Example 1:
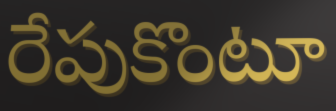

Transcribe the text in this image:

రేపుకొంటూ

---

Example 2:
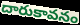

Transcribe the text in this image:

దారుకావనం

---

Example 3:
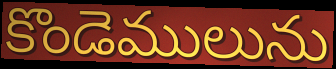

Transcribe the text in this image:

కొండెములును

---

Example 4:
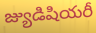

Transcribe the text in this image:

జ్యుడిషియరీ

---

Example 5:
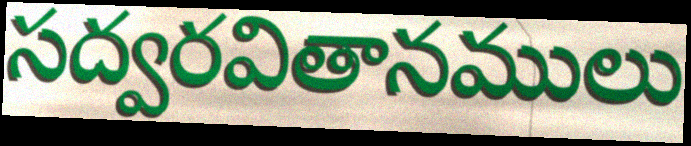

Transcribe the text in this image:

సద్వరవితానములు